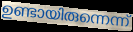
ഉണ്ടായിരുന്നെന്ന്